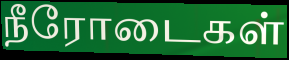
நீரோடைகள்